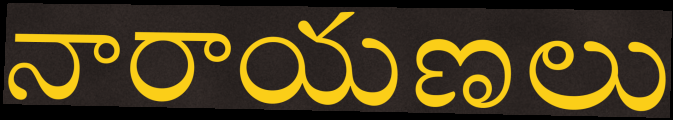
నారాయణలు